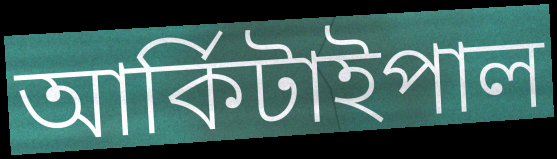
আৰ্কিটাইপাল